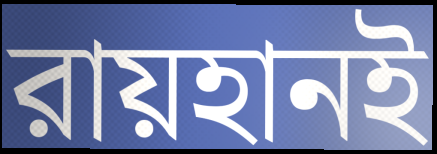
রায়হানই